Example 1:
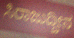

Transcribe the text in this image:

ಸಿರಾಜುದ್ದೀನ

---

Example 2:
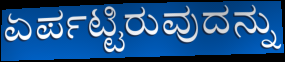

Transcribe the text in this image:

ಏರ್ಪಟ್ಟಿರುವುದನ್ನು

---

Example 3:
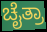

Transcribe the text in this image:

ಚೈತ್ರಾ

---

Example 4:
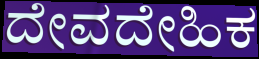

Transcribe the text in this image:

ದೇವದೇಹಿಕ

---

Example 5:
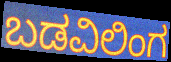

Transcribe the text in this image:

ಬಡವಿಲಿಂಗ